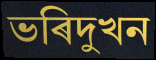
ভৰিদুখন